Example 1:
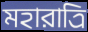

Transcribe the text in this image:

মহারাত্রি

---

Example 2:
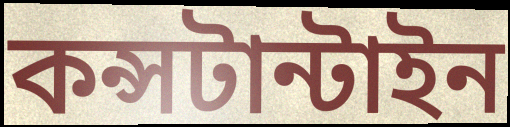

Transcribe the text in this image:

কন্সটান্টাইন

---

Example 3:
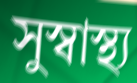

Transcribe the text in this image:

সুস্বাস্থ্য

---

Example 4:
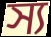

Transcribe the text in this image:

স্য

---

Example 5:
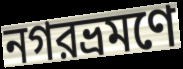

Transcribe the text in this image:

নগরভ্রমণে